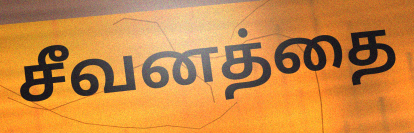
சீவனத்தை